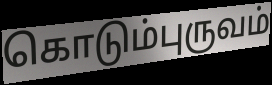
கொடும்புருவம்